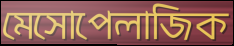
মেসোপেলাজিক